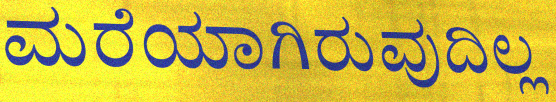
ಮರೆಯಾಗಿರುವುದಿಲ್ಲ